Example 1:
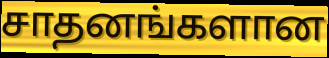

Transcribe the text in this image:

சாதனங்களான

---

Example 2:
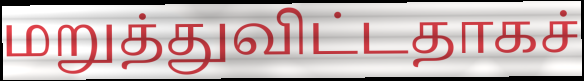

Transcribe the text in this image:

மறுத்துவிட்டதாகச்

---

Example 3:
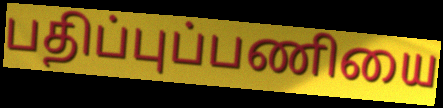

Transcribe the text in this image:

பதிப்புப்பணியை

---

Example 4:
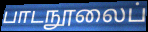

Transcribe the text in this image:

பாடநூலைப்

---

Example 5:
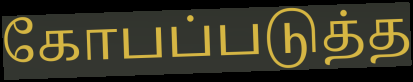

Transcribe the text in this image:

கோபப்படுத்த